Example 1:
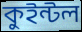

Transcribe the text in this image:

কুইন্টল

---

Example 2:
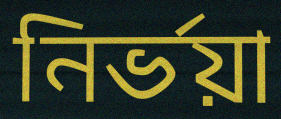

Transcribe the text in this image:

নির্ভয়া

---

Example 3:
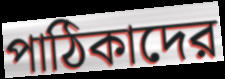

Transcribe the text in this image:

পাঠিকাদের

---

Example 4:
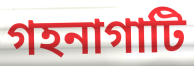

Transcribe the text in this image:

গহনাগাটি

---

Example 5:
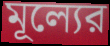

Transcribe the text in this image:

মূল্যের